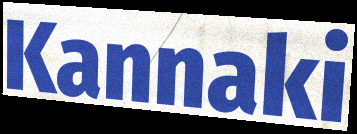
Kannaki